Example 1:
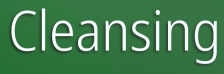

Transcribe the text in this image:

Cleansing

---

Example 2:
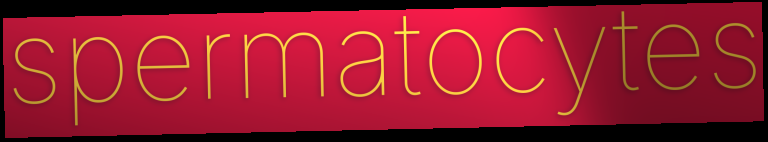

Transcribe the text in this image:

spermatocytes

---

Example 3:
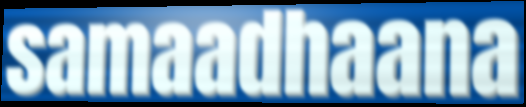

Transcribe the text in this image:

samaadhaana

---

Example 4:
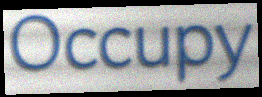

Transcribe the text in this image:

Occupy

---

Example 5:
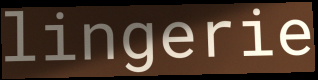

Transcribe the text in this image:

lingerie